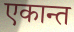
एकान्त